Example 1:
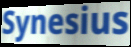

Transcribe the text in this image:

Synesius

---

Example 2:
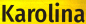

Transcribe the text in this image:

Karolina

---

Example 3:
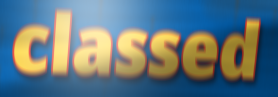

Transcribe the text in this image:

classed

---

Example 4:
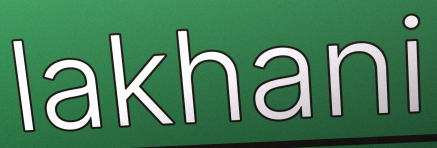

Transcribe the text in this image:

lakhani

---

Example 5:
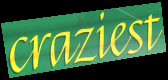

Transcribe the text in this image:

craziest